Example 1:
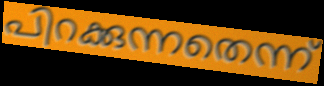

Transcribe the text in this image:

പിറക്കുന്നതെന്ന്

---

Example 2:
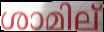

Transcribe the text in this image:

ശാമില്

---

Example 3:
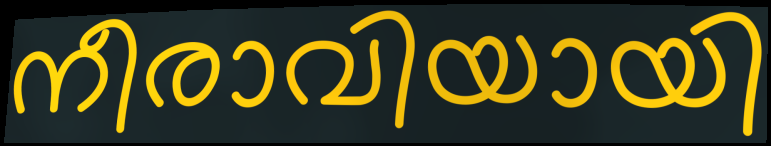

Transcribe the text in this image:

നീരാവിയായി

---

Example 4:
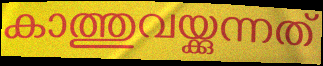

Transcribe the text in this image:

കാത്തുവയ്ക്കുന്നത്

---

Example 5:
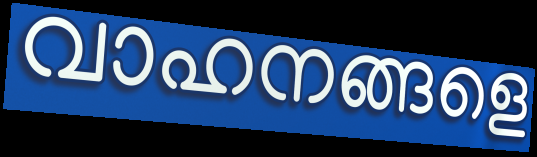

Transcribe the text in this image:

വാഹനങ്ങളെ